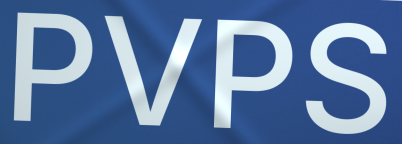
PVPS